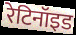
रेटिनॉइड